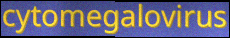
cytomegalovirus